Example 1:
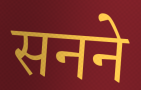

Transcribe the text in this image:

सनने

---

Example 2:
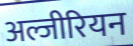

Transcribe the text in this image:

अल्जीरियन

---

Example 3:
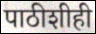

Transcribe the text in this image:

पाठीशीही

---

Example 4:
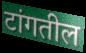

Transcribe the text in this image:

टांगतील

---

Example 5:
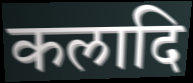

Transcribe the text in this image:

कलादि